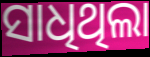
ସାଧିଥିଲା